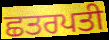
ਛਤਰਪਤੀ